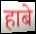
हाबे